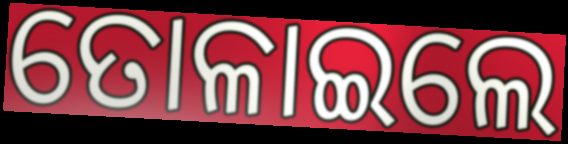
ତୋଳାଇଲେ